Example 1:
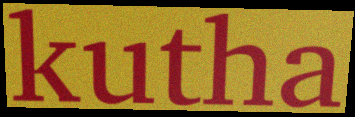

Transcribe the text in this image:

kutha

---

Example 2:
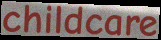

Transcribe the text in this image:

childcare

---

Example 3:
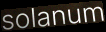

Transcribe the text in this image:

solanum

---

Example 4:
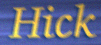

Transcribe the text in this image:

Hick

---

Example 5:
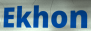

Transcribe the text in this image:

Ekhon